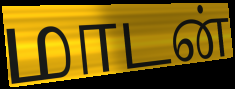
மாடன்